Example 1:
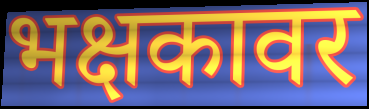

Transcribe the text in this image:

भक्षकावर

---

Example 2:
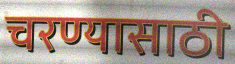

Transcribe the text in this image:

चरण्यासाठी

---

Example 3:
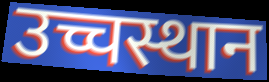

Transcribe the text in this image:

उच्चस्थान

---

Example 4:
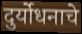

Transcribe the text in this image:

दुर्योधनाचे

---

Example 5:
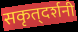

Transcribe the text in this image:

सकृत्‌दर्शनी